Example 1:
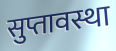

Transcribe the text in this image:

सुप्तावस्था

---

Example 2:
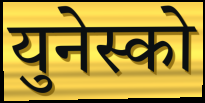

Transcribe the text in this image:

युनेस्को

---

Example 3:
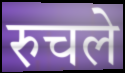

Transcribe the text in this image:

रुचले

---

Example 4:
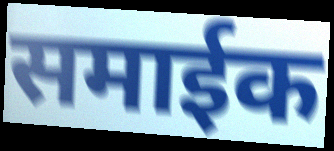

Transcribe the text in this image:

समाईक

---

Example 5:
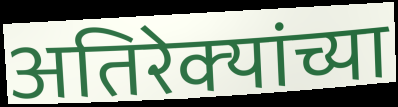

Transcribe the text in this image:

अतिरेक्‍यांच्या